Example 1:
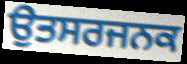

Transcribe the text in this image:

ਉਤਸਰਜਨਕ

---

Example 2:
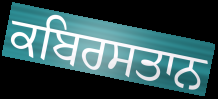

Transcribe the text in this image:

ਕਬਿਰਸਤਾਨ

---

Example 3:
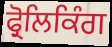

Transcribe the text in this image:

ਫ੍ਰੋਲਿਕਿੰਗ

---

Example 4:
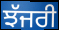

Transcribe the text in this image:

ਝੱਜਰੀ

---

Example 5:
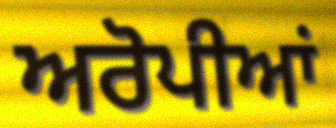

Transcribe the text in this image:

ਅਰੋਪੀਆਂ